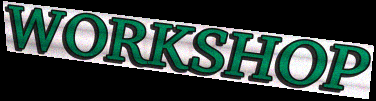
WORKSHOP